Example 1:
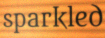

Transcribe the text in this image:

sparkled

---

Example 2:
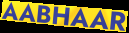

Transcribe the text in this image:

AABHAAR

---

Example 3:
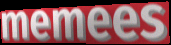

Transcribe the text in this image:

memees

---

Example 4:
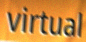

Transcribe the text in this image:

virtual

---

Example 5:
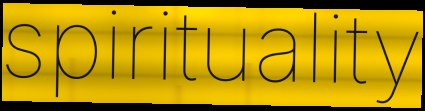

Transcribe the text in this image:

spirituality